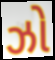
ઝો